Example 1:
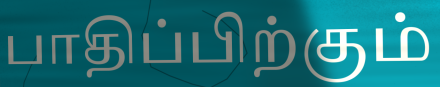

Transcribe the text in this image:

பாதிப்பிற்கும்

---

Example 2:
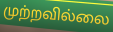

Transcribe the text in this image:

முற்றவில்லை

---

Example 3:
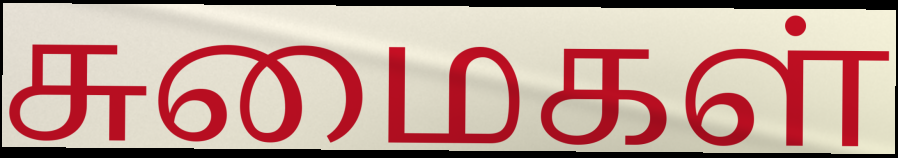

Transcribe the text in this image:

சுமைகள்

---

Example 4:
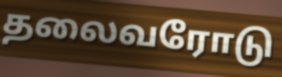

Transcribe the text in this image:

தலைவரோடு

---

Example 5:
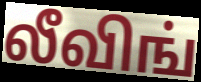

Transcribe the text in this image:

லீவிங்